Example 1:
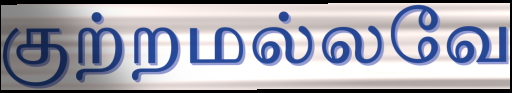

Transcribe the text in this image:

குற்றமல்லவே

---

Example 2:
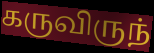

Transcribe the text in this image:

கருவிருந்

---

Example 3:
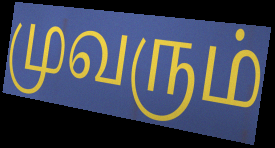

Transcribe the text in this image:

முவரும்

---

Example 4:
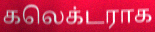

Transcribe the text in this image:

கலெக்டராக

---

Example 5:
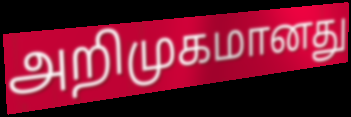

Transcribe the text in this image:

அறிமுகமானது